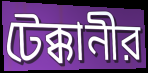
টেক্কানীর